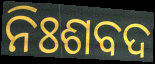
ନିଃଶବଦ